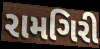
રામગિરી